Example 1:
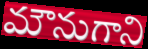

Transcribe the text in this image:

మౌనుగాని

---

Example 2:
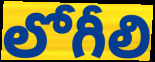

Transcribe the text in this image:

లోగీలి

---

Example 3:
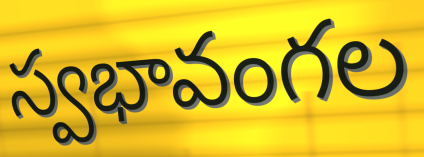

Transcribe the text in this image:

స్వభావంగల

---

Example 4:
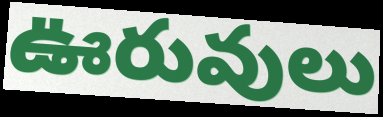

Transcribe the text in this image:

ఊరువులు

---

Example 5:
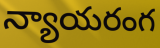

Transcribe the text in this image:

న్యాయరంగ